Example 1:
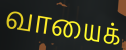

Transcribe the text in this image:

வாயைக்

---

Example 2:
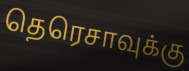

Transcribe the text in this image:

தெரெசாவுக்கு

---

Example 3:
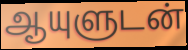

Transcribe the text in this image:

ஆயுளுடன்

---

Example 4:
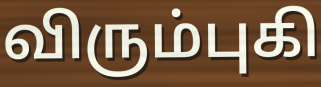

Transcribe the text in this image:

விரும்புகி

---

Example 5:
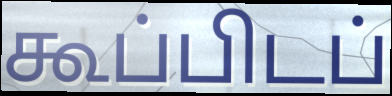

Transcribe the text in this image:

கூப்பிடப்